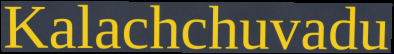
Kalachchuvadu